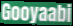
Gooyaabi